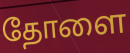
தோளை